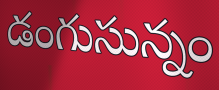
డంగుసున్నం